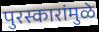
पुरस्कारांमुळे